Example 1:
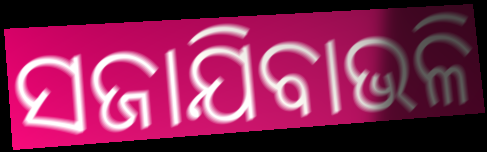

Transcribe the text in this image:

ସଜାଯିବାଭଳି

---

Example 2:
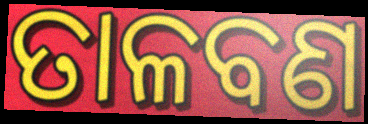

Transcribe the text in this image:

ତାଳବଣ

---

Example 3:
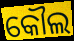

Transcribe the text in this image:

କୌଲ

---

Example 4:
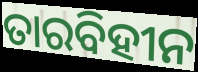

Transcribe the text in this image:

ତାରବିହୀନ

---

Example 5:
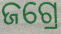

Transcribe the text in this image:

ଜଗ୍ରେ